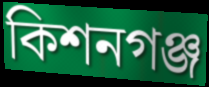
কিশনগঞ্জ